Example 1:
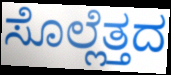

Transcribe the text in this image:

ಸೊಲ್ಲೆತ್ತದ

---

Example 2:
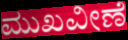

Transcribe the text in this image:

ಮುಖವೀಣೆ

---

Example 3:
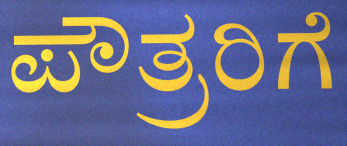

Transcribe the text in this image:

ಪೌತ್ರರಿಗೆ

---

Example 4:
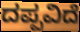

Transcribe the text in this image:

ದಪ್ಪವಿದೆ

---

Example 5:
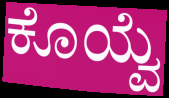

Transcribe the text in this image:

ಕೊಯ್ವೆ